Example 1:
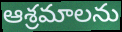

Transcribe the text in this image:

ఆశ్రమాలను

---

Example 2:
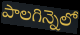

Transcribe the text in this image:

పాలగిన్నెలో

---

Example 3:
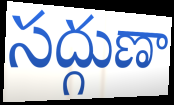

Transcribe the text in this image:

సద్గుణా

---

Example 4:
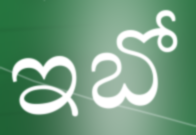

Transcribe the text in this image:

ఇబో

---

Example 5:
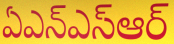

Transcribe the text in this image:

ఏఎన్ఎస్ఆర్